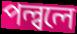
পল্বলে